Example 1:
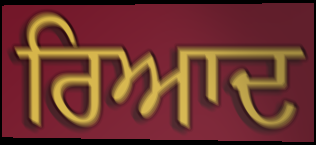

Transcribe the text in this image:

ਰਿਆਦ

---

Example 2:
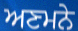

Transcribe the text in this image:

ਅਣਮਨੇ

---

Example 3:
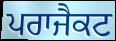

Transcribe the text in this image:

ਪਰਾਜੈਕਟ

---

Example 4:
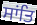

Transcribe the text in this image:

ਸਾਂਤਿ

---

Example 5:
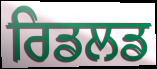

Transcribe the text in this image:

ਰਿਡਲਡ